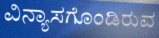
ವಿನ್ಯಾಸಗೊಂಡಿರುವ